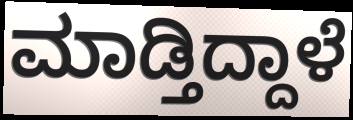
ಮಾಡ್ತಿದ್ದಾಳೆ